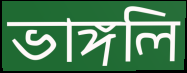
ভাঙ্গলি